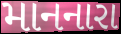
માનનારા